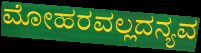
ಮೋಹರವಲ್ಲದನ್ಯವ